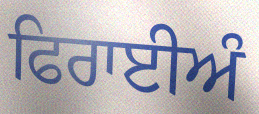
ਫਿਰਾਈਅੰ